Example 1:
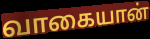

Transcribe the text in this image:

வாகையான்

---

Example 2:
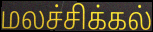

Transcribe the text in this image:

மலச்சிக்கல்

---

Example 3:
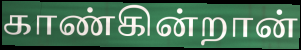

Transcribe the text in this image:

காண்கின்றான்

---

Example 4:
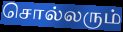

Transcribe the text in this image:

சொல்லரும்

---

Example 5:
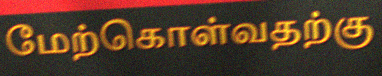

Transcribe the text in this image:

மேற்கொள்வதற்கு